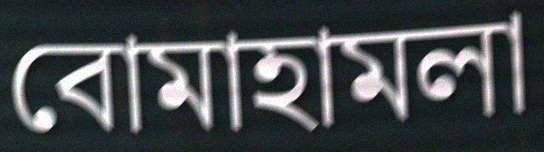
বোমাহামলা